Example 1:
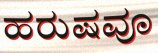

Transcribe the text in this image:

ಹರುಷವೂ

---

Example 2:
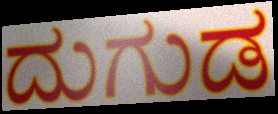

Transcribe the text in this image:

ದುಗುಡ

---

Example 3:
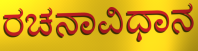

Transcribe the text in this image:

ರಚನಾವಿಧಾನ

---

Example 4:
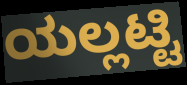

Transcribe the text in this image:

ಯಲ್ಲಟ್ಟಿ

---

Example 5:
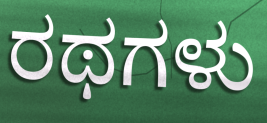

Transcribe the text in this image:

ರಥಗಳು